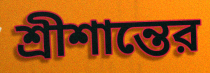
শ্রীশান্তের